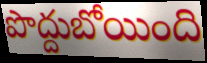
పొద్దుబోయింది